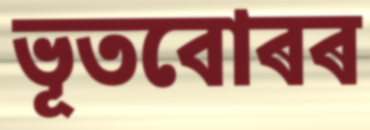
ভূতবোৰৰ